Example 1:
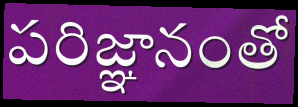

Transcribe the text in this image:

పరిజ్ఞానంతో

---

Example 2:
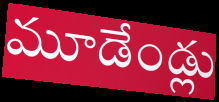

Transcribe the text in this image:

మూడేండ్లు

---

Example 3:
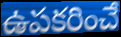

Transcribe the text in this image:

ఉపకరించే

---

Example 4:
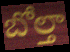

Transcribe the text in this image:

బోల్తా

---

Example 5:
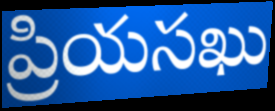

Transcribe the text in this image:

ప్రియసఖు